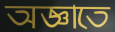
অজ্ঞাতে